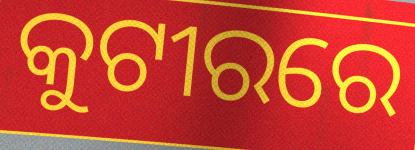
କୁଟୀରରେ